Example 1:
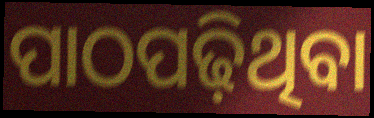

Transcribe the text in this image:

ପାଠପଢ଼ିଥିବା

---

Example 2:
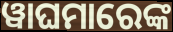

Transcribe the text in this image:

ୱାଘମାରେଙ୍କ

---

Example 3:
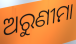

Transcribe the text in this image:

ଅରୁଣୀମା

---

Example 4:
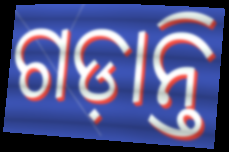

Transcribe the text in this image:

ଗଡ଼ାନ୍ତି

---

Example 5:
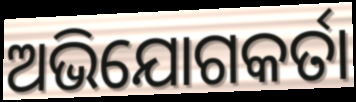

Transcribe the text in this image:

ଅଭିଯୋଗକର୍ତା